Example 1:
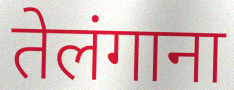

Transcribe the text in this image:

तेलंगाना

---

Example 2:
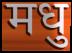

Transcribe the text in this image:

मधु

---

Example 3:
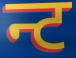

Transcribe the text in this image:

न्ट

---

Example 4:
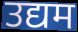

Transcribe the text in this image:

उद्यम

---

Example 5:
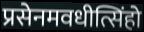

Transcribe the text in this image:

प्रसेनमवधीत्सिंहो